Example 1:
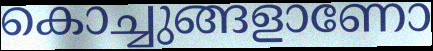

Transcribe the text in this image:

കൊച്ചുങ്ങളാണോ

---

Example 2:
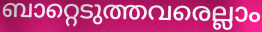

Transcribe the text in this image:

ബാറ്റെടുത്തവരെല്ലാം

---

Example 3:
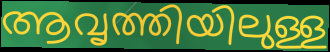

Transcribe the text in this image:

ആവൃത്തിയിലുള്ള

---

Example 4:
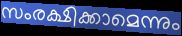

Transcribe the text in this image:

സംരക്ഷിക്കാമെന്നും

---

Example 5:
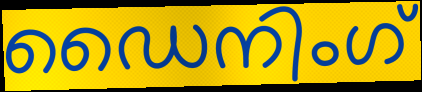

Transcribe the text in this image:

ഡൈനിംഗ്